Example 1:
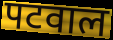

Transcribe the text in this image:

पटवाल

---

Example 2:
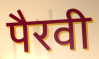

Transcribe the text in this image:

पैरवी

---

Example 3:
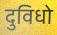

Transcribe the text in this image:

दुविधो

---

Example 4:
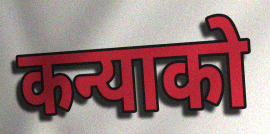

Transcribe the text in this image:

कन्याको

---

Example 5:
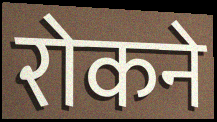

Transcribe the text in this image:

रोकने